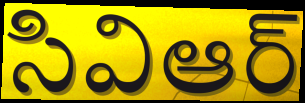
సివిఆర్